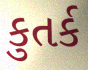
કુતર્ક